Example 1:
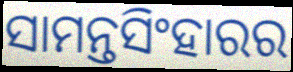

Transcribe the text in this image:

ସାମନ୍ତସିଂହାରର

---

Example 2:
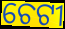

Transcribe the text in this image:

ଚେଟୀ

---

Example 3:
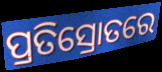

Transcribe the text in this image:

ପ୍ରତିସ୍ରୋତରେ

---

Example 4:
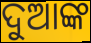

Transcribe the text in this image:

ଦୁଆଙ୍କ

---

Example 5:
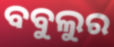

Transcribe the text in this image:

ବବୁଲୁର